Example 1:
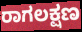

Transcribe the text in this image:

ರಾಗಲಕ್ಷಣ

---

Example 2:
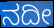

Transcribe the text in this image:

ನದೀ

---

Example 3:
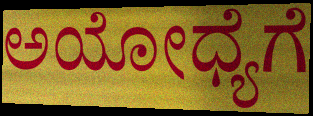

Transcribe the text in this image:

ಅಯೋಧ್ಯೆಗೆ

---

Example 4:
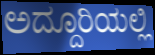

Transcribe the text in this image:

ಅದ್ದೂರಿಯಲ್ಲಿ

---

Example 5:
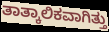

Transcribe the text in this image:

ತಾತ್ಕಾಲಿಕವಾಗಿತ್ತು